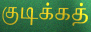
குடிக்கத்